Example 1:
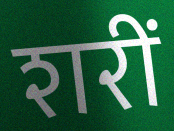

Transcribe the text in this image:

शरीं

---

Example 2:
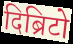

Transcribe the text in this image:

दिब्रिटो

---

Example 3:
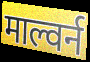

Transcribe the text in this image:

माल्वर्न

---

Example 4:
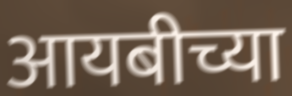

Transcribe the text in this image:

आयबीच्या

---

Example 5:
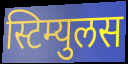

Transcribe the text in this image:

स्टिम्युलस